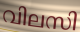
വിലസി